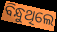
ବିନ୍ଧୁଥିଲେ